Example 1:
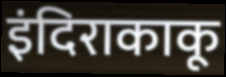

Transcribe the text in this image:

इंदिराकाकू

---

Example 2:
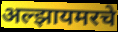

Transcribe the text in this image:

अल्झायमरचे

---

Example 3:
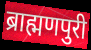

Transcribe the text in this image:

ब्राह्मणपुरी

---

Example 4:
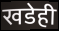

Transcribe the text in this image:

खडेही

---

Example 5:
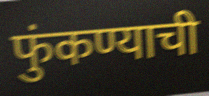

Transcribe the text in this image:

फुंकण्याची